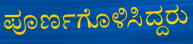
ಪೂರ್ಣಗೊಳಿಸಿದ್ದರು